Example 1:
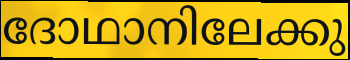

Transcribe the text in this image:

ദോഥാനിലേക്കു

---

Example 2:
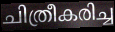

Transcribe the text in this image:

ചിത്രീകരിച്ച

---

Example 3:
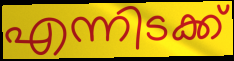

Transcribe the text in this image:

എന്നിടക്ക്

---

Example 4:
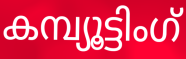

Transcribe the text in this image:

കമ്പ്യൂട്ടിംഗ്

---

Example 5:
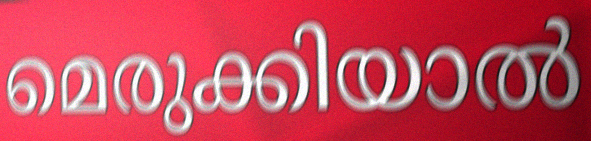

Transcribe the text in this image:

മെരുക്കിയാൽ